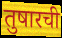
तुषारची